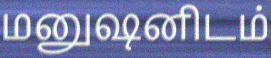
மனுஷனிடம்